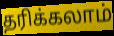
தரிக்கலாம்